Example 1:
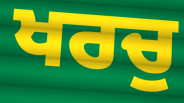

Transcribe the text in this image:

ਖਰਚੁ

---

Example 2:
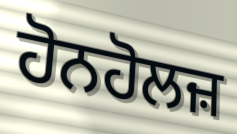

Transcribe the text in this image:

ਹੋਨਹੋਲਜ਼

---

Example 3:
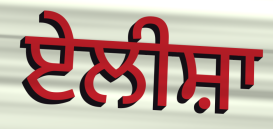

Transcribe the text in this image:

ਏਲੀਸ਼ਾ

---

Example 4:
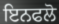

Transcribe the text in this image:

ਇਨਫਲੋ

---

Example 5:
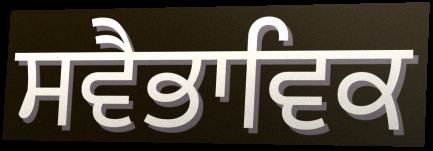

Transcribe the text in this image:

ਸਵੈਭਾਵਿਕ